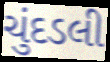
ચુંદડલી